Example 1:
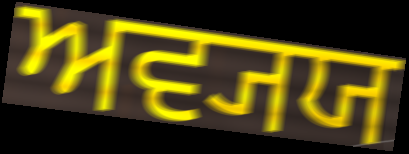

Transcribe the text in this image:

ਅਵ੍ਯਯ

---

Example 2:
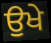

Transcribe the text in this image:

ਉਖੇ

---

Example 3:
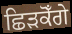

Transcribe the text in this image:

ਛਿੜਕੋਁਗੇ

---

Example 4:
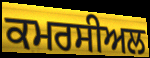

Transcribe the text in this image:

ਕਮਰਸੀਅਲ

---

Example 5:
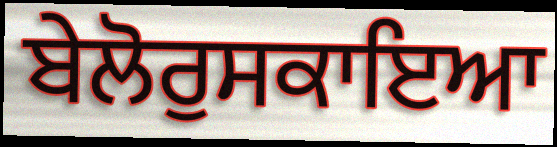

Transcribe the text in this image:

ਬੇਲੋਰੁਸਕਾਇਆ